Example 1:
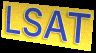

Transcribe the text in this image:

LSAT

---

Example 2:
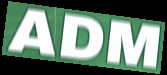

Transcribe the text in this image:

ADM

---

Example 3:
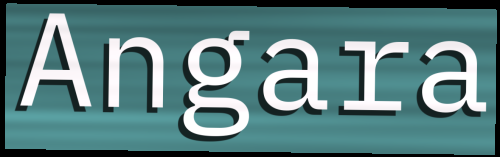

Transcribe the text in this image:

Angara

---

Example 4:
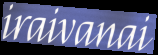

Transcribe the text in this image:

iraivanai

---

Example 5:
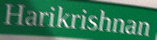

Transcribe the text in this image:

Harikrishnan